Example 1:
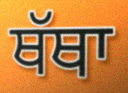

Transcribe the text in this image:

ਥੱਥਾ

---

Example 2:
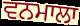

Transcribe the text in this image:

ਵਨਮਾਲਾ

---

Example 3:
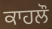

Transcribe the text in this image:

ਕਾਹਲੌ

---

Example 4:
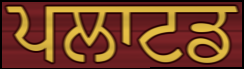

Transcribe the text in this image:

ਪਲਾਟਡ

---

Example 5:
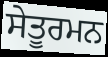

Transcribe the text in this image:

ਸੇਤੂਰਮਨ